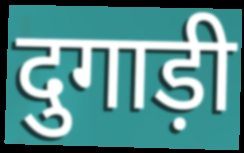
दुगाड़ी